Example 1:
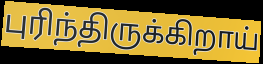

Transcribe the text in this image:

புரிந்திருக்கிறாய்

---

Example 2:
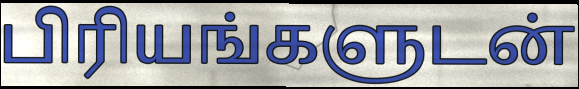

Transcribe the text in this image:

பிரியங்களுடன்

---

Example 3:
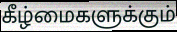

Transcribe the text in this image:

கீழ்மைகளுக்கும்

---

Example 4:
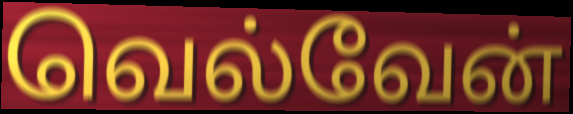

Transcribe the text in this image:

வெல்வேன்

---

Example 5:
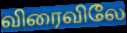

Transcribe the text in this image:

விரைவிலே